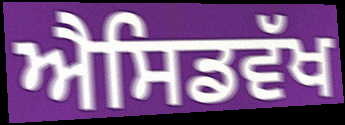
ਐਸਿਡਵੱਖ